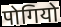
पोगियो